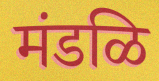
मंडळि